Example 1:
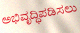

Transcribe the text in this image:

ಅಭಿವೃದ್ಧಿಪಡಿಸಲು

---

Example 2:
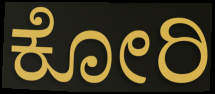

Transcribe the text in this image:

ಕೋರಿ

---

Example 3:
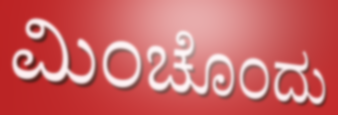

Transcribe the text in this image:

ಮಿಂಚೊಂದು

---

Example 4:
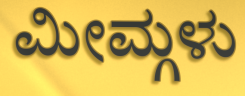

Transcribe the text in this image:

ಮೀಮ್ಗಳು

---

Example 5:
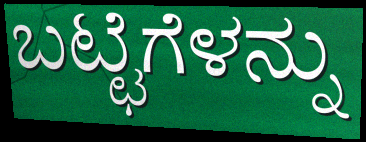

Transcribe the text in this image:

ಬಟ್ಟೆಗೆಳನ್ನು